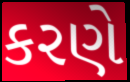
કરણે